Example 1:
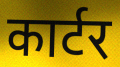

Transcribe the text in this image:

कार्टर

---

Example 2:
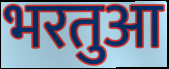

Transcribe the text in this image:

भरतुआ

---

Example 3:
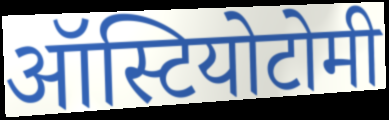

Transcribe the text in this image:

ऑस्टियोटोमी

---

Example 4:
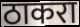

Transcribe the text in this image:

ठाकरा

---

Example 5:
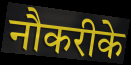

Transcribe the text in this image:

नौकरीके